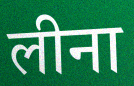
लीना